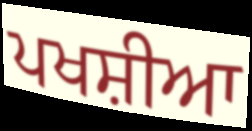
ਪਖਸ਼ੀਆ